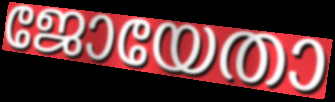
ജോയേതാ